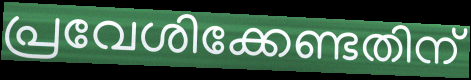
പ്രവേശിക്കേണ്ടതിന്